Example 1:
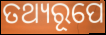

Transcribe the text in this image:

ତଥ୍ୟରୂପେ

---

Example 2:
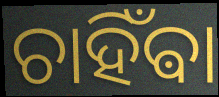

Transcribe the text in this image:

ଚାହିଁଵା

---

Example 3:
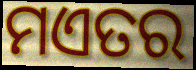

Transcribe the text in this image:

ମଏତର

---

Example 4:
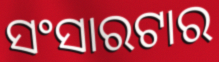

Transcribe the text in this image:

ସଂସାରଟାର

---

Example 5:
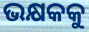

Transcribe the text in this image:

ଭକ୍ଷକକୁ